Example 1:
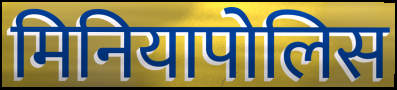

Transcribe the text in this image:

मिनियापोलिस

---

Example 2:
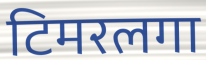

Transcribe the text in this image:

टिमरलगा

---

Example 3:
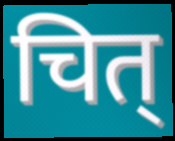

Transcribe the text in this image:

चित्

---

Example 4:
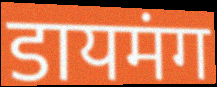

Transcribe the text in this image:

डायमंग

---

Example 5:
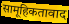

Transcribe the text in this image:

सामूहिकतावाद